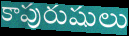
కాపురుషులు